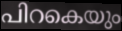
പിറകെയും